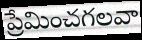
ప్రేమించగలవా